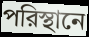
পরিস্থানে